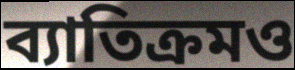
ব্যাতিক্রমও